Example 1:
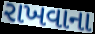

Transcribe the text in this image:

રાખવાના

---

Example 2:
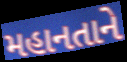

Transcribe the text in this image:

મહાનતાને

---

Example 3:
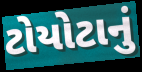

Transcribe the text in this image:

ટોયોટાનું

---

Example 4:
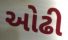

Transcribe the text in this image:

ઓઢી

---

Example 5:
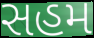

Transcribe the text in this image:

સહમ